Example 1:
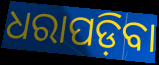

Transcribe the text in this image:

ଧରାପଡ଼ିବା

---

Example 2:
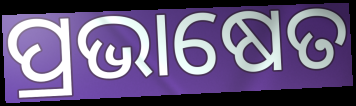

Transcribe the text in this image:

ପ୍ରଭାଷେତ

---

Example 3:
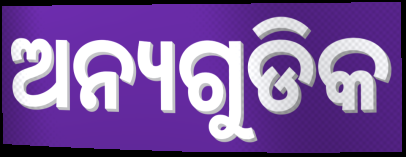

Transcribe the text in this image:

ଅନ୍ୟଗୁଡିକ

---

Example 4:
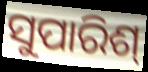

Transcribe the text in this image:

ସୁପାରିଶ୍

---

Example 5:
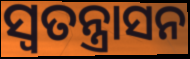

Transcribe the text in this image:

ସ୍ଵତନ୍ତ୍ରାସନ